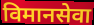
विमानसेवा